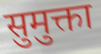
सुमुक्ता